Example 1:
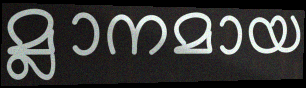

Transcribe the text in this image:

മ്ലാനമായ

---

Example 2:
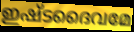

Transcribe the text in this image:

ഇഷ്ടദൈവമേ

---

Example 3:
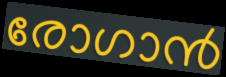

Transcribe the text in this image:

രോഗാൻ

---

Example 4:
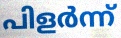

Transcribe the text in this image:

പിളർന്ന്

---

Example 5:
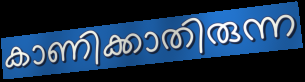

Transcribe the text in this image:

കാണിക്കാതിരുന്ന